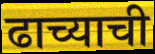
ढाच्याची